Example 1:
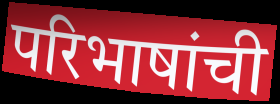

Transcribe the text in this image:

परिभाषांची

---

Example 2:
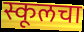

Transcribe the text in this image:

स्कूलचा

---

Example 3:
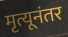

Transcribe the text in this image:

मृत्यूनंतर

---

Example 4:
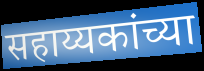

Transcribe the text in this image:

सहाय्यकांच्या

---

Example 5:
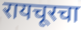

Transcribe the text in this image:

रायचूरचा